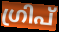
ഗ്രിപ്